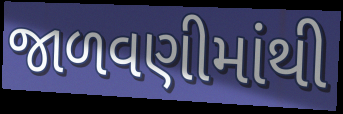
જાળવણીમાંથી